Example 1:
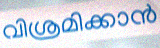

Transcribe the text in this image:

വിശ്രമിക്കാൻ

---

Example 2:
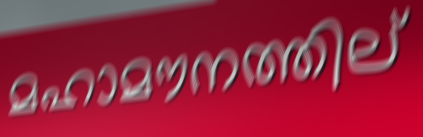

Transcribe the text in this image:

മഹാമൗനത്തില്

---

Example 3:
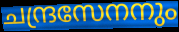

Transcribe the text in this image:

ചന്ദ്രസേനനും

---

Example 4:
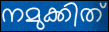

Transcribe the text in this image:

നമുക്കിത്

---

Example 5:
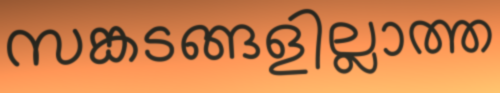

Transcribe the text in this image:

സങ്കടങ്ങളില്ലാത്ത